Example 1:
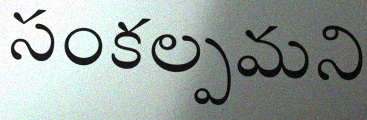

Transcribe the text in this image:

సంకల్పమని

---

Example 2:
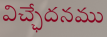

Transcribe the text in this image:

విచ్ఛేదనము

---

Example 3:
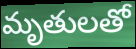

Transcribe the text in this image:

మృతులతో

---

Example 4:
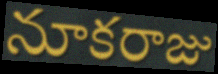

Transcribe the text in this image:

నూకరాజు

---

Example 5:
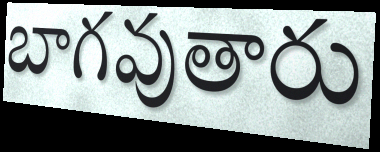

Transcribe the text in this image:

బాగవుతారు